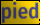
pied